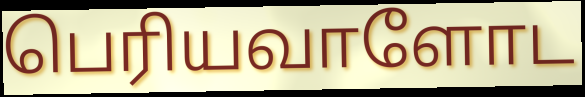
பெரியவாளோட